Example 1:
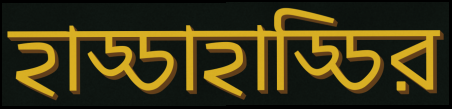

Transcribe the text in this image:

হাড্ডাহাড্ডির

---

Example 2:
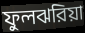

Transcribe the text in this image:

ফুলঝরিয়া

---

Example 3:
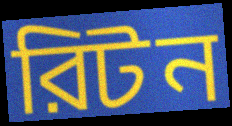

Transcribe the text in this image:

রিটন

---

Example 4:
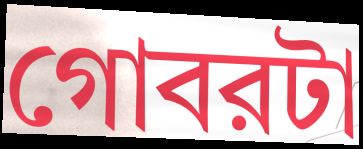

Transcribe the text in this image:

গোবরটা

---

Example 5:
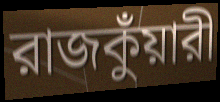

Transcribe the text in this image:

রাজকুঁয়ারী